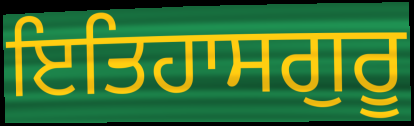
ਇਤਿਹਾਸਗੁਰੂ